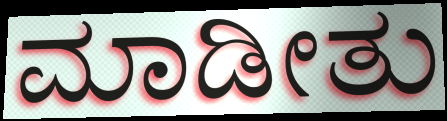
ಮಾಡೀತು